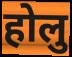
होलु